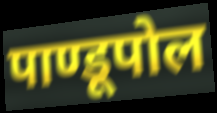
पाण्डूपोल